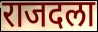
राजदला